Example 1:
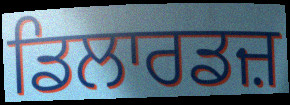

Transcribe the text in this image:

ਡਿਲਾਰਡਜ਼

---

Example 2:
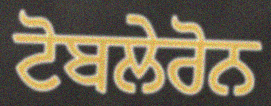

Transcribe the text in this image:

ਟੋਬਲੇਰੋਨ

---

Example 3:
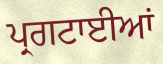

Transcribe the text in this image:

ਪ੍ਰਗਟਾਈਆਂ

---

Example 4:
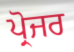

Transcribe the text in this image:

ਪ੍ਰੋਜਰ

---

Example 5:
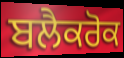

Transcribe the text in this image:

ਬਲੈਕਰੋਕ